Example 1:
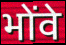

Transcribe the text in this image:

भोंवे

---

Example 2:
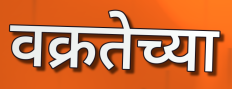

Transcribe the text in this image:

वक्रतेच्या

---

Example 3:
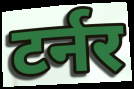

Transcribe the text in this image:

टर्नर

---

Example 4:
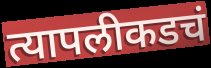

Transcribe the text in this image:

त्यापलीकडचं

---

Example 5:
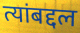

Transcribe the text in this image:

त्यांबद्दल